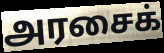
அரசைக்